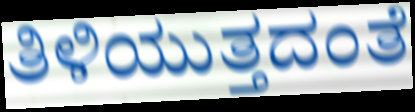
ತಿಳಿಯುತ್ತದಂತೆ